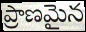
ప్రాణమైన